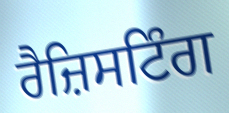
ਰੈਜ਼ਿਸਟਿੰਗ